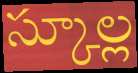
స్కూల్ల